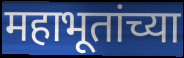
महाभूतांच्या